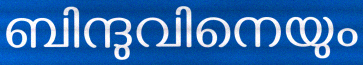
ബിന്ദുവിനെയും